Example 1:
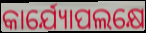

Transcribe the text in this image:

କାର୍ଯ୍ୟୋପଲକ୍ଷେ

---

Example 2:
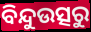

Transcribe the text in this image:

ବିନ୍ଦୁଉତ୍ସରୁ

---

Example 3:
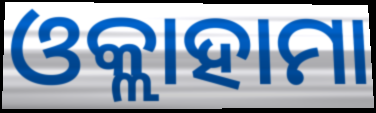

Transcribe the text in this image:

ଓକ୍ଲାହାମା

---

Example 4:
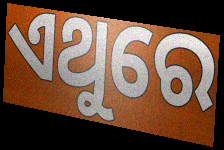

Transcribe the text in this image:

ଏଥୁରେ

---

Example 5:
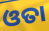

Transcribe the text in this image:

ଓତା